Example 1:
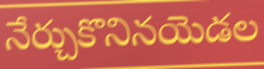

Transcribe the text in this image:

నేర్చుకొనినయెడల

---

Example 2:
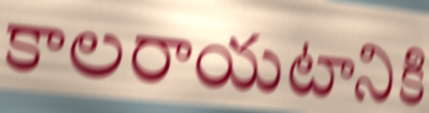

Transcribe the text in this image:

కాలరాయటానికి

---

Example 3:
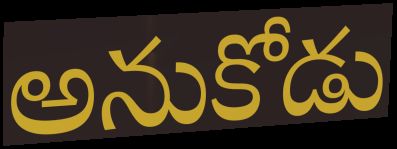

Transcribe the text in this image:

అనుకోడు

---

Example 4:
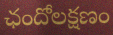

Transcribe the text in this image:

ఛందోలక్షణం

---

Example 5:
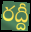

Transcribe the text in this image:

రద్దీ